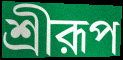
শ্রীরূপ